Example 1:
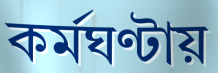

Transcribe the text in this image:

কর্মঘণ্টায়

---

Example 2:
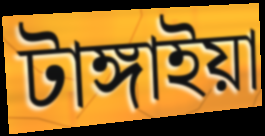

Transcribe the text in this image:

টাঙ্গাইয়া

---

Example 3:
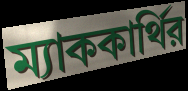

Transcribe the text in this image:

ম্যাককার্থির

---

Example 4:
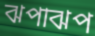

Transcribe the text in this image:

ঝপাঝপ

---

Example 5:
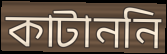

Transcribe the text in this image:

কাটাননি